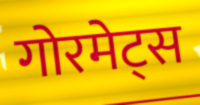
गोरमेट्स